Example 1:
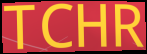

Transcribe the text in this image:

TCHR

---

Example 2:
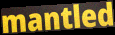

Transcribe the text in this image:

mantled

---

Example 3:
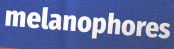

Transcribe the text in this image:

melanophores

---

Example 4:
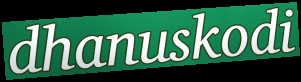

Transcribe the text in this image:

dhanuskodi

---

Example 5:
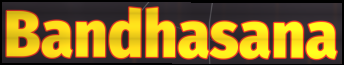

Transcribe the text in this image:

Bandhasana